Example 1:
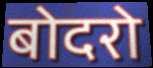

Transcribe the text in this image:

बोदरो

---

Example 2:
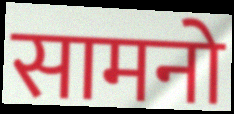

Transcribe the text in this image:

सामनो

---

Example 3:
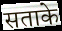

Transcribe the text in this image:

सताके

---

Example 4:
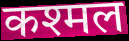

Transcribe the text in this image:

कश्मल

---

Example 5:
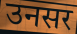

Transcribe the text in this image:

उनसर